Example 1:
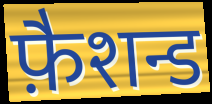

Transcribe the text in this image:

फ़ैशन्ड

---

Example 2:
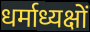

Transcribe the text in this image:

धर्माध्यक्षों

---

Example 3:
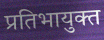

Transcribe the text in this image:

प्रतिभायुक्त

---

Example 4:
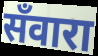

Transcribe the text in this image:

सँवारा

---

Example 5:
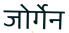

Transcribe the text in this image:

जोर्गेन